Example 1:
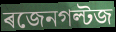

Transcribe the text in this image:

ৰজেনগল্টজ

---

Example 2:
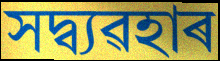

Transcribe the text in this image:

সদ্ব্যৱহাৰ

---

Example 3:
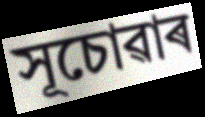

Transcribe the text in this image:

সূচোৱাৰ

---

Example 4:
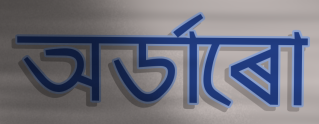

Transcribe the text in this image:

অৰ্ডাৰো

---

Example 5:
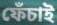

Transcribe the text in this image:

ফেঁচাই